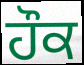
ਹੌਕ